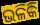
ଭଳିକି